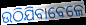
ଉଠିଯିବାବେଳେ